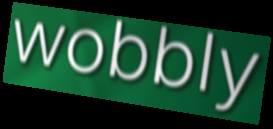
wobbly